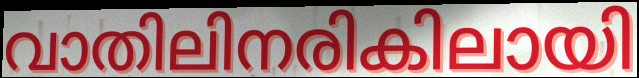
വാതിലിനരികിലായി